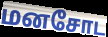
மனசோட